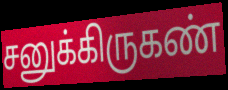
சனுக்கிருகண்